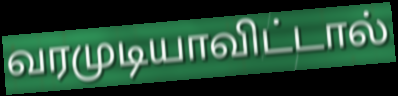
வரமுடியாவிட்டால்